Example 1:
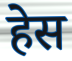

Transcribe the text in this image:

हेस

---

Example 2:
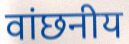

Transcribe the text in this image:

वांछनीय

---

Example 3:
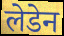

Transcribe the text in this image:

लेडेन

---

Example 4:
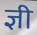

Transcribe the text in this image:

ज्ञी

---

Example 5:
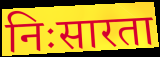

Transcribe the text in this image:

निःसारता